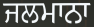
ਜਲਮਾਨਾ